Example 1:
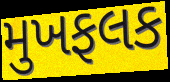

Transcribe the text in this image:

મુખફલક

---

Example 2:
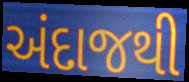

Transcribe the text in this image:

અંદાજથી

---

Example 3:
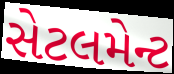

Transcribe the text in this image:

સેટલમેન્ટ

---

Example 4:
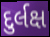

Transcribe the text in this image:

દુર્લક્ષ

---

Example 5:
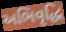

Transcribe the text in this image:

અભિવૃદ્ધિ